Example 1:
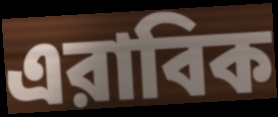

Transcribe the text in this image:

এরাবিক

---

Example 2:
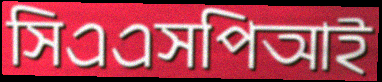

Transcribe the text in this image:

সিএএসপিআই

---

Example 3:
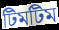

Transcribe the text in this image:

টিমটিম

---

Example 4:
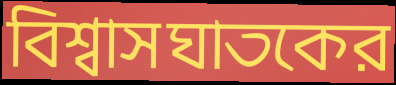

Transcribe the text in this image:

বিশ্বাসঘাতকের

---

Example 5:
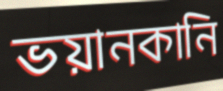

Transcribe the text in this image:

ভয়ানকানি